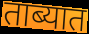
ताब्यात